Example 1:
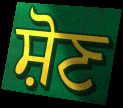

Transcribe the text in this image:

ਸ਼ੋਣ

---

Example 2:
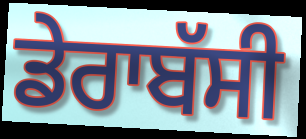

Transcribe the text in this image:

ਡੇਰਾਬੱਸੀ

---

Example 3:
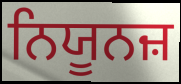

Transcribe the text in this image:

ਨਿਯੂਨਜ਼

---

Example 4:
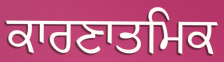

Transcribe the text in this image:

ਕਾਰਣਾਤਮਿਕ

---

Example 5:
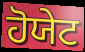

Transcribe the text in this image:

ਹੋਯੇਟ